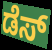
ಡೆಸ್